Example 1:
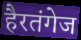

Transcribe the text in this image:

हैरतंगेज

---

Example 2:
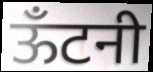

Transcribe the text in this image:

ऊँटनी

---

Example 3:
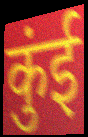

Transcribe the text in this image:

कुंई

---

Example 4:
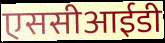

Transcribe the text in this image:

एससीआईडी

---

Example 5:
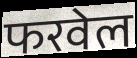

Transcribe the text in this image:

फरवेल